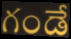
గండే